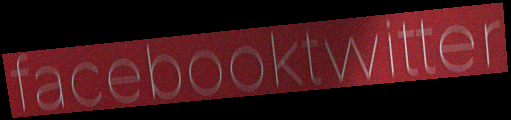
facebooktwitter